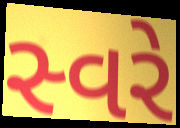
સ્વરે